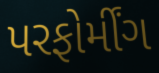
પરફોર્મીંગ